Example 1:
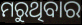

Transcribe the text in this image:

ମରୁଥିବାର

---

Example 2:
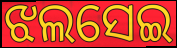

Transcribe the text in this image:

ଝଲସେଇ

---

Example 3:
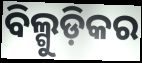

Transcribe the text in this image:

ବିଲ୍ଗୁଡ଼ିକର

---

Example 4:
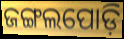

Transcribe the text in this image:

ଜଙ୍ଗଲପୋଡ଼ି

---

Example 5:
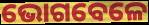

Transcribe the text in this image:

ଭୋଗବେଳେ